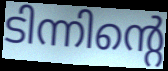
ടിന്നിന്റെ